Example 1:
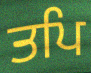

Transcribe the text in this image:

ਤਪਿ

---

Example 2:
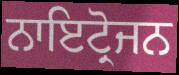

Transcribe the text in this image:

ਨਾਇਟ੍ਰੋਜਨ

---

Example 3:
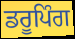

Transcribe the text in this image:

ਡਰੂਪਿੰਗ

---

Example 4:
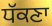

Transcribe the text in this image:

ਧੱਕਣਾ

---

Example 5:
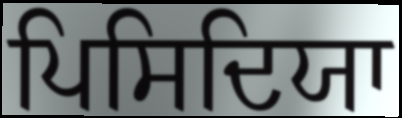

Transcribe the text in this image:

ਪਿਸਿਦਿਯਾ